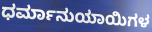
ಧರ್ಮಾನುಯಾಯಿಗಳ